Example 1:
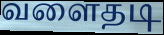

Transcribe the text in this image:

வளைதடி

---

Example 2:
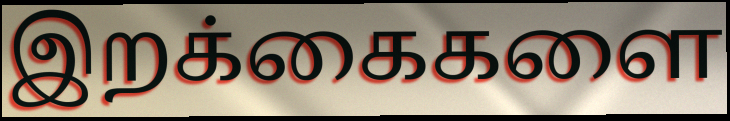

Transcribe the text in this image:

இறக்கைகளை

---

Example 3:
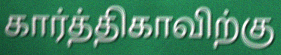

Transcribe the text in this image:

கார்த்திகாவிற்கு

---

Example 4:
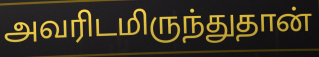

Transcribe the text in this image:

அவரிடமிருந்துதான்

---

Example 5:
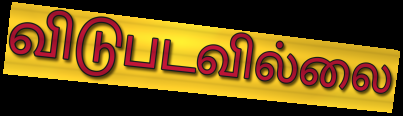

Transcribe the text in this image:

விடுபடவில்லை